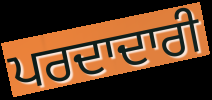
ਪਰਦਾਦਾਰੀ